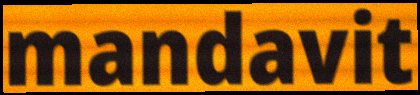
mandavit